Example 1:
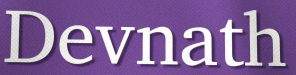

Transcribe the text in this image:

Devnath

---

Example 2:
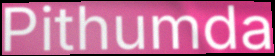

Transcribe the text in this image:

Pithumda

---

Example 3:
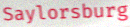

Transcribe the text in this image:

Saylorsburg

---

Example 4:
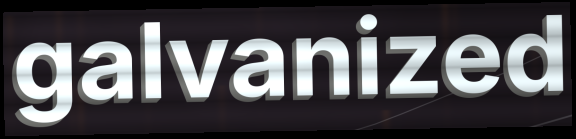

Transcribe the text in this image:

galvanized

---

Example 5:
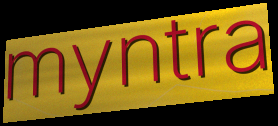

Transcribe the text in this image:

myntra